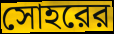
সোহরের